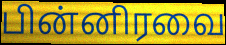
பின்னிரவை